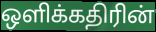
ஒளிக்கதிரின்